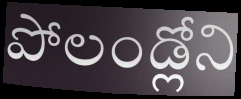
పోలండ్లోని